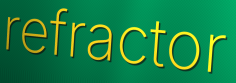
refractor